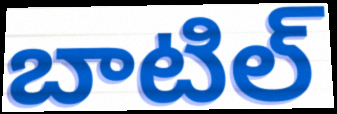
బాటిల్